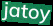
jatoy